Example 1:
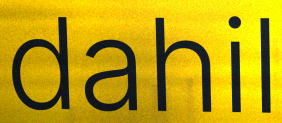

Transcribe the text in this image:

dahil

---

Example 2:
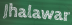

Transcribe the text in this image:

Jhalawar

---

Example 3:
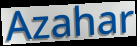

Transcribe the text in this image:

Azahar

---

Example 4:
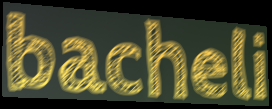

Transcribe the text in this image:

bacheli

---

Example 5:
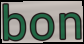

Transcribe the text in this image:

bon